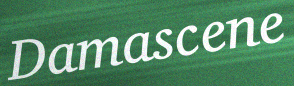
Damascene